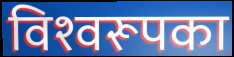
विश्वरूपका